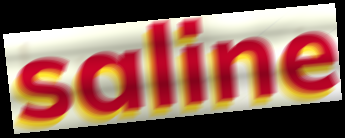
saline